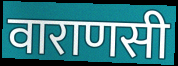
वाराणसी